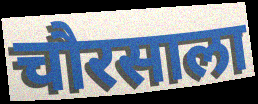
चौरसाला